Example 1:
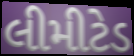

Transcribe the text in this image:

લીમીટેડ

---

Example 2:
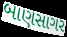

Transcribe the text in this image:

બાણસાગર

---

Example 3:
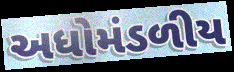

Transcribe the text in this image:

અધોમંડળીય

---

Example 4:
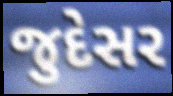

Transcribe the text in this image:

જુદેસર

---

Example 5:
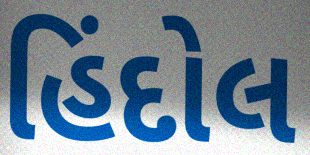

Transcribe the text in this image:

હિંદોલ